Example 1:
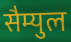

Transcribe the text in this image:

सैम्युल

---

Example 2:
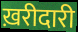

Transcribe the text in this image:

ख़रीदारी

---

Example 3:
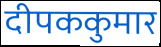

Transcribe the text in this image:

दीपककुमार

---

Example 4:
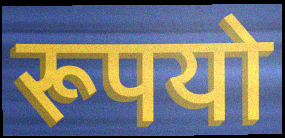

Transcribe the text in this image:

रूपयो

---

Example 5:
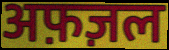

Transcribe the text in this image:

अफ़ज़ल